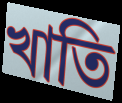
খাতি